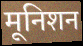
मूनिशन